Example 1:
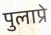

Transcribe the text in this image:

पुलाप्रे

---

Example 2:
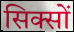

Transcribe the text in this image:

सिक्सों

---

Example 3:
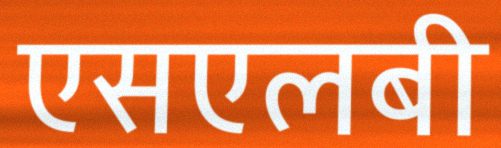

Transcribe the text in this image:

एसएलबी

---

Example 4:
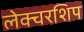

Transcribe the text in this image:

लेक्चरशिप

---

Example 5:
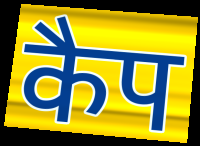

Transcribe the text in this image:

कैप